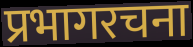
प्रभागरचना